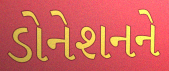
ડોનેશનને